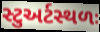
સ્ટુઅર્ટસ્થળઃ